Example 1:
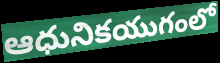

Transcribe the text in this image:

ఆధునికయుగంలో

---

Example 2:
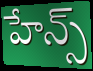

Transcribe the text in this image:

హేన్స్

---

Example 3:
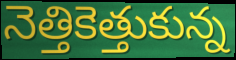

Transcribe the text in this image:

నెత్తికెత్తుకున్న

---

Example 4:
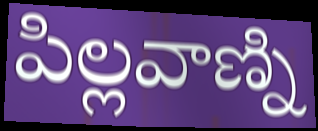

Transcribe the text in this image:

పిల్లవాణ్ని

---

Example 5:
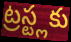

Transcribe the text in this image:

ట్రస్ట్లకు